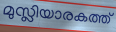
മുസ്ലിയാരകത്ത്